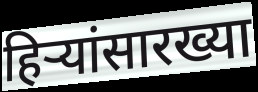
हिऱ्यांसारख्या